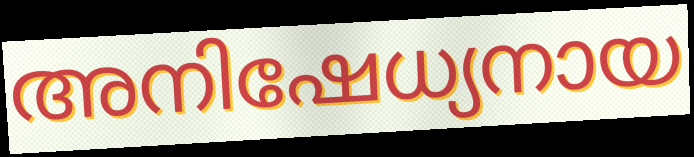
അനിഷേധ്യനായ